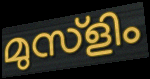
മുസ്ളിം